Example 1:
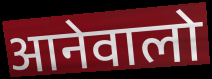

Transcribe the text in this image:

आनेवालो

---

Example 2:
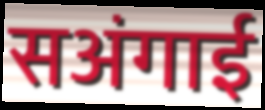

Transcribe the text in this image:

सअंगाई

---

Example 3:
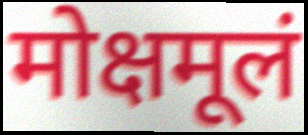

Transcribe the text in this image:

मोक्षमूलं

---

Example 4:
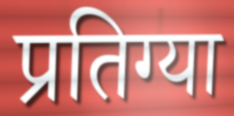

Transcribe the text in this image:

प्रतिग्या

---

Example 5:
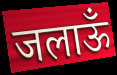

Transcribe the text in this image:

जलाऊँ